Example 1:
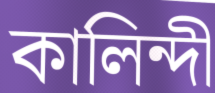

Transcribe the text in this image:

কালিন্দী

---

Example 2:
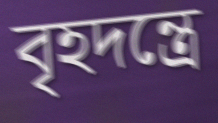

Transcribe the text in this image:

বৃহদন্ত্রে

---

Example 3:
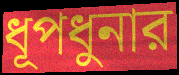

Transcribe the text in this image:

ধূপধুনার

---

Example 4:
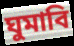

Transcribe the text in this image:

ঘুমাবি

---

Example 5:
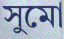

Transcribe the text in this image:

সুমো